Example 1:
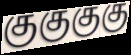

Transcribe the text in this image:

குகுகுகு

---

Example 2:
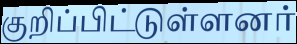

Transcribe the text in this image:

குறிப்பிட்டுள்ளனர்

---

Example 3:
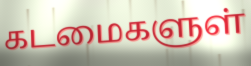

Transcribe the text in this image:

கடமைகளுள்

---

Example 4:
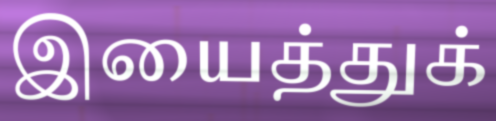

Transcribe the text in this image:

இயைத்துக்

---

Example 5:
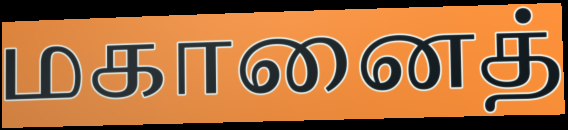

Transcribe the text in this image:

மகானைத்